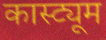
कास्ट्यूम